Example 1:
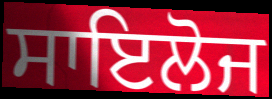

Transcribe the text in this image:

ਸਾਇਲੋਜ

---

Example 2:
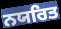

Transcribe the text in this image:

ਨਯਰਿਤ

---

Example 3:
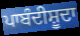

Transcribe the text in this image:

ਪਾਬੰਦੀਸ਼ੂਦਾ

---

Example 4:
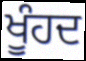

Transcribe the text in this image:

ਖੂੰਹਦ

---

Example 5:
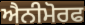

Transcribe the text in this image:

ਐਨੀਮੋਰਫ